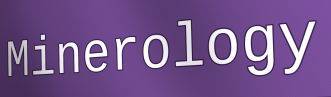
Minerology